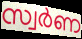
സ്വർണ